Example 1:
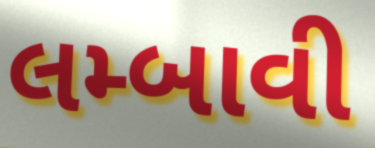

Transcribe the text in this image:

લમ્બાવી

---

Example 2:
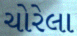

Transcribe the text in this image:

ચોરેલા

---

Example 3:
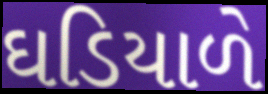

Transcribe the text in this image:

ઘડિયાળે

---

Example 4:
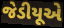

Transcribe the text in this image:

જેડીયૂએ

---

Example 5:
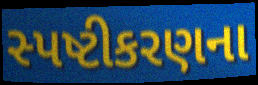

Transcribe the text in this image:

સ્પષ્ટીકરણના